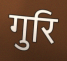
गुरि